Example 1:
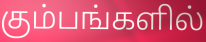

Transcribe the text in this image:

கும்பங்களில்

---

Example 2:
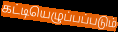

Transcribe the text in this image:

கட்டியெழுப்பப்படும்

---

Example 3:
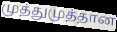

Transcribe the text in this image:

முத்துமுத்தான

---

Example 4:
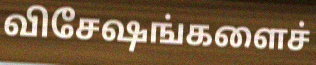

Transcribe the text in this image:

விசேஷங்களைச்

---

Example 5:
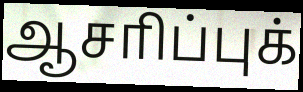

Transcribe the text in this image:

ஆசரிப்புக்